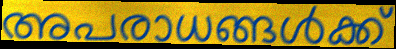
അപരാധങ്ങൾക്ക്